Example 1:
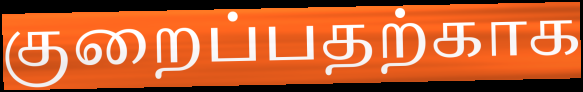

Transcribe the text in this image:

குறைப்பதற்காக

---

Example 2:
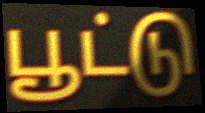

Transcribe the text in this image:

பூட்டு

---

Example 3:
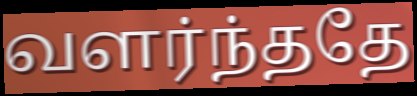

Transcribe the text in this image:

வளர்ந்ததே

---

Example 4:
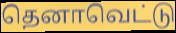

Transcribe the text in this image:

தெனாவெட்டு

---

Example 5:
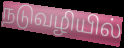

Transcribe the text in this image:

நடுவழியில்